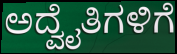
ಅದ್ವೈತಿಗಳಿಗೆ